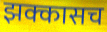
झक्कासच